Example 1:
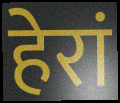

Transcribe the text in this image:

हेरां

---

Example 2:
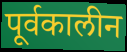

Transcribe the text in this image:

पूर्वकालीन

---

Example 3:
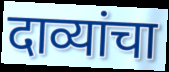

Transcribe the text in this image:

दाव्यांचा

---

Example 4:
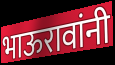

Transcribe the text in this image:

भाऊरावांनी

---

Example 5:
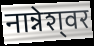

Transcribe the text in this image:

नान्नेश्वर